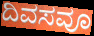
ದಿವಸವೂ